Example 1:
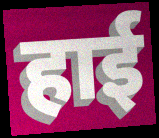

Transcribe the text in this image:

हाई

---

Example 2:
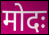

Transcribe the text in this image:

मोदः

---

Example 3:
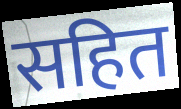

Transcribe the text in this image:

सहित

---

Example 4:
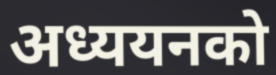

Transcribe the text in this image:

अध्ययनको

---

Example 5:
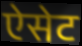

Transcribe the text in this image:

ऐसेट